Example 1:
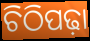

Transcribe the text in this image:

ଚିଠିପଢ଼ା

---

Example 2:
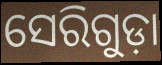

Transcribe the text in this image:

ସେରିଗୁଡ଼ା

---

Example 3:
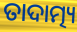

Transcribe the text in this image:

ତାଦାତ୍ମ୍ୟ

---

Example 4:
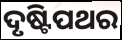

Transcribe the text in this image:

ଦୃଷ୍ଟିପଥର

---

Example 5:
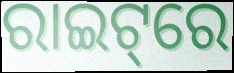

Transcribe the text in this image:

ରାଇଟ୍‌ରେ